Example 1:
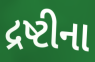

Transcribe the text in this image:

દ્રષ્ટીના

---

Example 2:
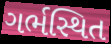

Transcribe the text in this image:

ગર્ભસ્થિત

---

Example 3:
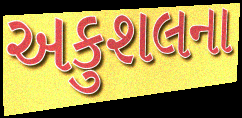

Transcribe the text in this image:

અકુશલના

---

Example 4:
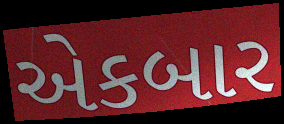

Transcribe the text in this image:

એકબાર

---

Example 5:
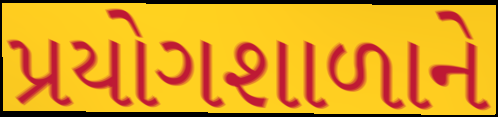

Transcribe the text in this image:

પ્રયોગશાળાને